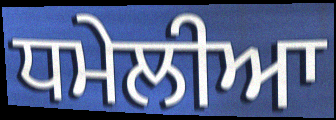
ਧਮੇਲੀਆ